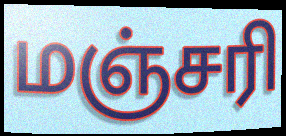
மஞ்சரி